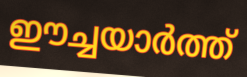
ഈച്ചയാർത്ത്